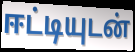
ஈட்டியுடன்